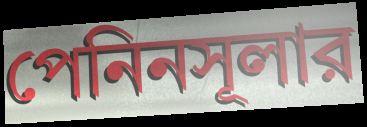
পেনিনসূলার